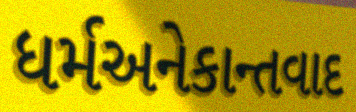
ધર્મઅનેકાન્તવાદ